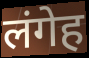
लंगेह